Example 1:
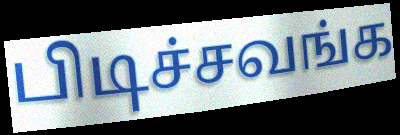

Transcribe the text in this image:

பிடிச்சவங்க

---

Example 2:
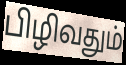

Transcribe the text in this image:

பிழிவதும்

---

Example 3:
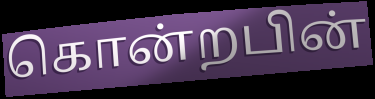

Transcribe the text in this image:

கொன்றபின்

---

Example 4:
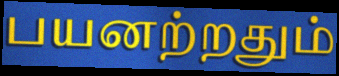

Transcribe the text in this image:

பயனற்றதும்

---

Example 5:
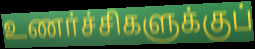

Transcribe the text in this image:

உணர்ச்சிகளுக்குப்